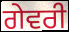
ਗੇਵਰੀ